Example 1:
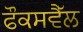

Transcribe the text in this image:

ਫੌਕਸਵੈੱਲ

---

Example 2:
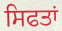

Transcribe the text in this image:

ਸਿਫਤਾਂ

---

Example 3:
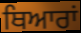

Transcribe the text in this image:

ਥਿਆਰਾਂ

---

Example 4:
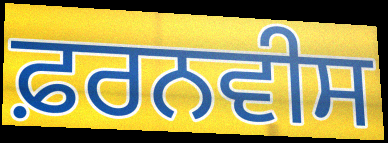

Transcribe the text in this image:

ਫ਼ਰਨਵੀਸ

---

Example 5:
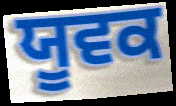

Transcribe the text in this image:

ਯੂਵਕ